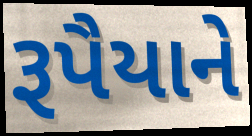
રૂપૈયાને